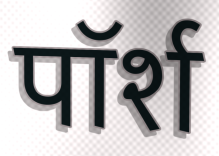
पॉर्श